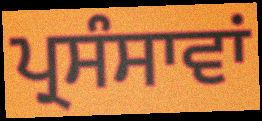
ਪ੍ਰਸੰਸਾਵਾਂ